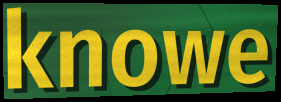
knowe